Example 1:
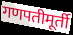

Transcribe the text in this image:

गणपतीमूर्ती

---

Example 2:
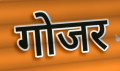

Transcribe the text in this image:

गोजर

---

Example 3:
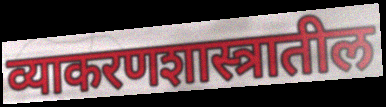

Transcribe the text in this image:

व्याकरणशास्त्रातील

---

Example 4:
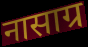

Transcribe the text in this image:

नासाग्र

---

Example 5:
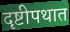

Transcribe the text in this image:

दृष्टीपथात